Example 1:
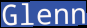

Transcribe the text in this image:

Glenn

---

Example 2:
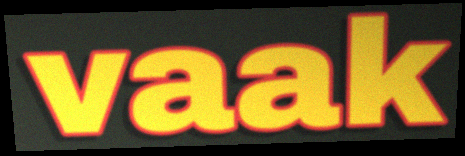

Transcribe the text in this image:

vaak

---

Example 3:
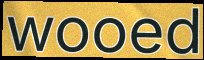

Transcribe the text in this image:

wooed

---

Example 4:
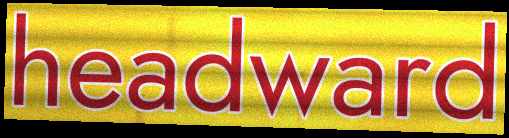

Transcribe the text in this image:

headward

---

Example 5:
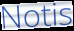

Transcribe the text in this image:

Notis